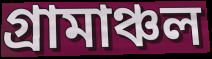
গ্রামাঞ্চল